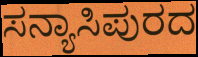
ಸನ್ಯಾಸಿಪುರದ